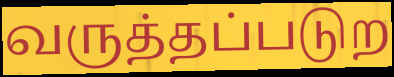
வருத்தப்படுற